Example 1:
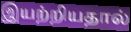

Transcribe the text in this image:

இயற்றியதால்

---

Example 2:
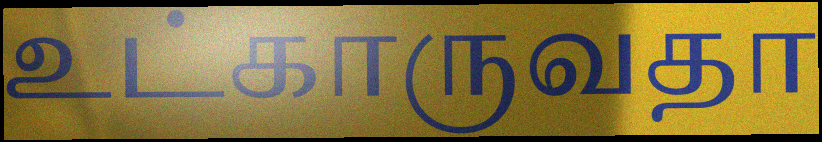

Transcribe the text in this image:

உட்காருவதா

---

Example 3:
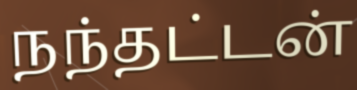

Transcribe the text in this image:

நந்தட்டன்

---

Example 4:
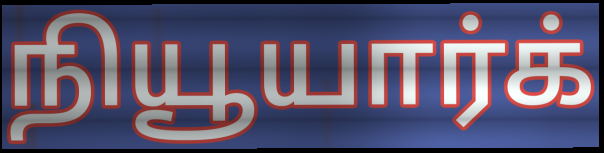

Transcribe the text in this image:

நியூயார்க்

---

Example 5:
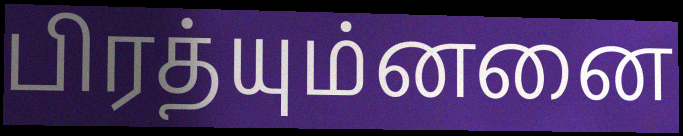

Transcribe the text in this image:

பிரத்யும்னனை